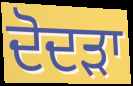
ਦੋਦੜਾ